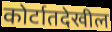
कोर्टातदेखील